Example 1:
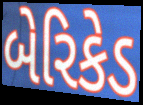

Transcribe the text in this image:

બેરિકેડ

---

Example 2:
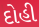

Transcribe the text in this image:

દોહી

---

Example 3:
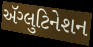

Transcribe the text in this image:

ઍગ્લુટિનેશન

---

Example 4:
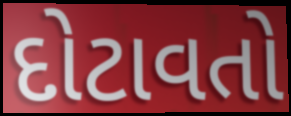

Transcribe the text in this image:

દોટાવતો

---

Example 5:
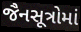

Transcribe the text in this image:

જૈનસૂત્રોમાં